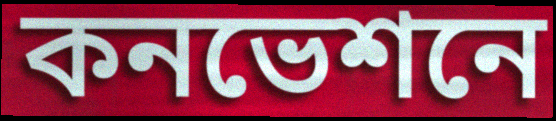
কনভেশনে